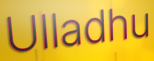
Ulladhu